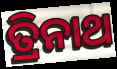
ତ୍ରିନାଥ